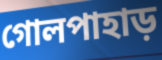
গোলপাহাড়